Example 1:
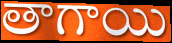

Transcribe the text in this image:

తాగాయి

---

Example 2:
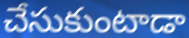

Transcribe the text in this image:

చేసుకుంటాడా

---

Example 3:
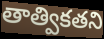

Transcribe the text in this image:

తాత్వికతని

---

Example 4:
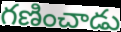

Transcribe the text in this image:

గణించాడు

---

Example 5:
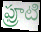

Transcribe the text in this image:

ఫ్రూటి